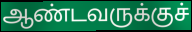
ஆண்டவருக்குச்